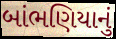
બાંભણિયાનું